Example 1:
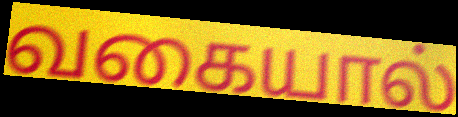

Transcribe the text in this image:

வகையால்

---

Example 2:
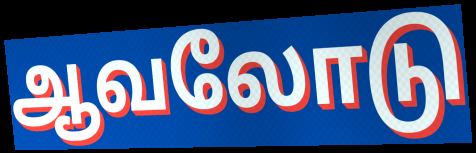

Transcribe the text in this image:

ஆவலோடு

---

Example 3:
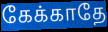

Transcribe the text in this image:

கேக்காதே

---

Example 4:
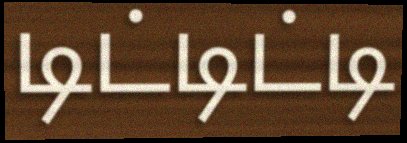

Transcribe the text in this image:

டிட்டிட்டி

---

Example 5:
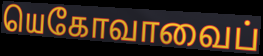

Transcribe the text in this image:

யெகோவாவைப்